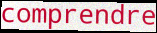
comprendre